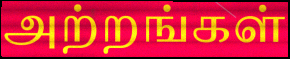
அற்றங்கள்